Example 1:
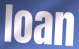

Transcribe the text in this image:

Ioan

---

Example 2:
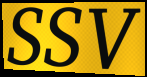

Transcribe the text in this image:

SSV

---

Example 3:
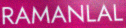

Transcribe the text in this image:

RAMANLAL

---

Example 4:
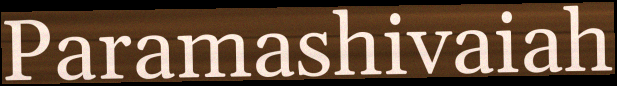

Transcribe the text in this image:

Paramashivaiah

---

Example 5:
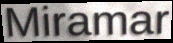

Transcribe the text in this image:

Miramar